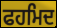
ਫਹਮਿਦ